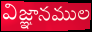
విజ్ఞానముల